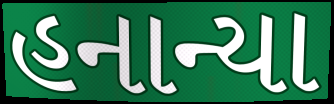
હનાન્યા